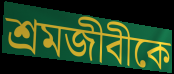
শ্রমজীবীকে